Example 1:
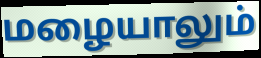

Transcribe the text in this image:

மழையாலும்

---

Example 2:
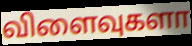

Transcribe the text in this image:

விளைவுகளா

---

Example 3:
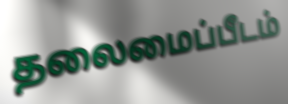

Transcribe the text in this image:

தலைமைப்பீடம்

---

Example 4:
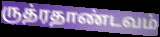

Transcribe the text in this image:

ருத்ரதாண்டவம்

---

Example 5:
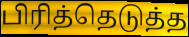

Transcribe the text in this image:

பிரித்தெடுத்த